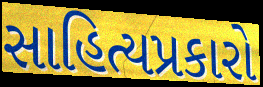
સાહિત્યપ્રકારો